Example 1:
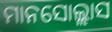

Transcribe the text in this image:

ମାନସୋଲ୍ଲାସ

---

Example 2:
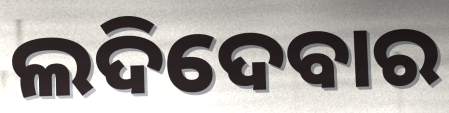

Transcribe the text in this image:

ଲଦିଦେବାର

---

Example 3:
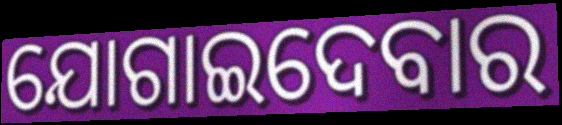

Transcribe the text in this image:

ଯୋଗାଇଦେବାର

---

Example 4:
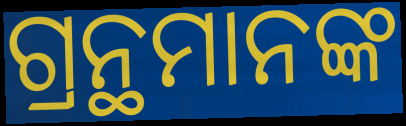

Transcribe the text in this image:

ଗ୍ରନ୍ଥମାନଙ୍କ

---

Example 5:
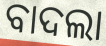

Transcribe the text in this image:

ବାଦଲା